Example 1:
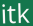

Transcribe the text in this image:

itk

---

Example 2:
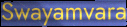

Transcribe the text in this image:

Swayamvara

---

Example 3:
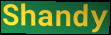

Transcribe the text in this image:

Shandy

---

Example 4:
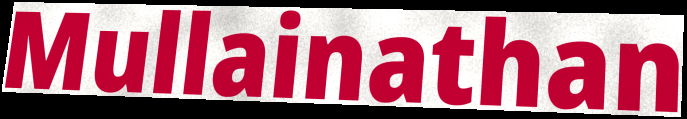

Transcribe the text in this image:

Mullainathan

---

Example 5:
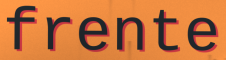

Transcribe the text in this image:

frente